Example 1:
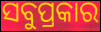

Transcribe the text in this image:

ସବୁପ୍ରକାର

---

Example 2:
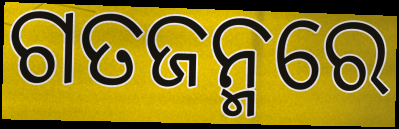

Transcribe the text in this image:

ଗତଜନ୍ମରେ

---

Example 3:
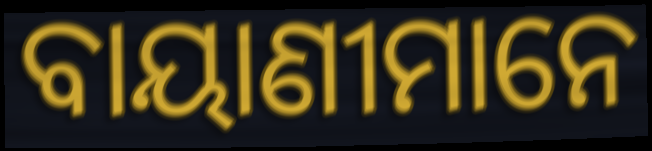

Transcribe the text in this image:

ବାୟାଣୀମାନେ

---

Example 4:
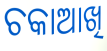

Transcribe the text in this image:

ଚକାଆଖି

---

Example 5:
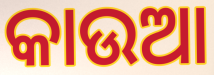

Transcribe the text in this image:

କାଉଆ